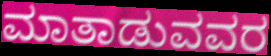
ಮಾತಾಡುವವರ